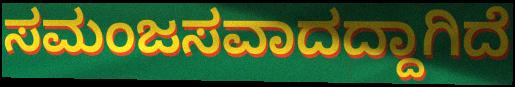
ಸಮಂಜಸವಾದದ್ದಾಗಿದೆ